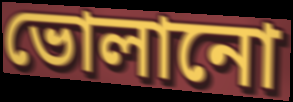
ভোলানো